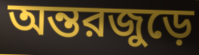
অন্তরজুড়ে